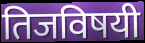
तिजविषयी